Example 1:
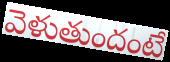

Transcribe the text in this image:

వెళుతుందంటే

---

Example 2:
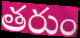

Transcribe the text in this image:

తరుం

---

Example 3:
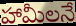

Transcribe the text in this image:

హామీలనే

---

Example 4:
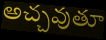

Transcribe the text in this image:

అచ్చవుతూ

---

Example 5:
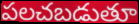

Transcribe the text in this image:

పలచబడుతూ